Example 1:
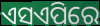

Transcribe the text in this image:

ଏସଏପିରେ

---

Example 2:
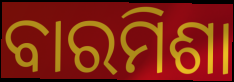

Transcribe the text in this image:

ବାରମିଶା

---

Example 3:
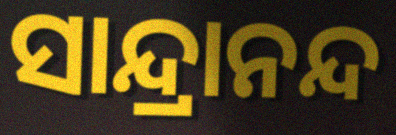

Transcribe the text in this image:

ସାନ୍ଦ୍ରାନନ୍ଦ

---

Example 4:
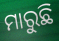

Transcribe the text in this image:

ମାରୁଛି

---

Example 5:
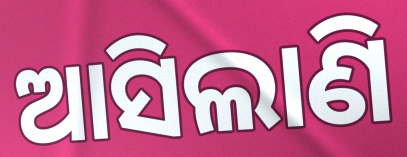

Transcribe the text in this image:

ଆସିଲାଣି